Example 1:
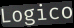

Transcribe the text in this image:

Logico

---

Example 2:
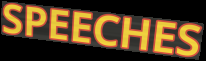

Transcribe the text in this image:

SPEECHES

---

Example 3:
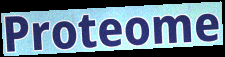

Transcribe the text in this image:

Proteome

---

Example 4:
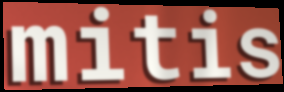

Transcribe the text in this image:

mitis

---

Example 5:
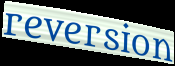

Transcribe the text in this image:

reversion